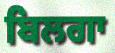
ਬਿਲਗਾ